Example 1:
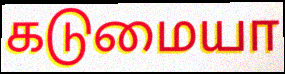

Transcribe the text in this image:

கடுமையா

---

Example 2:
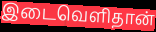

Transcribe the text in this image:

இடைவெளிதான்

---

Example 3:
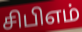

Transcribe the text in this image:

சிபிஎம்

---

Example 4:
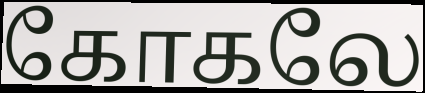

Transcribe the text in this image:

கோகலே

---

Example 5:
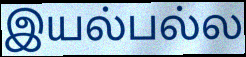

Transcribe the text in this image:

இயல்பல்ல